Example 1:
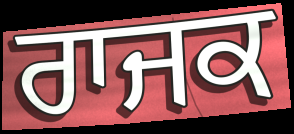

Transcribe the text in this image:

ਰਾਜਕ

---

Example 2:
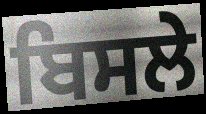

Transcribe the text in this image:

ਬਿਸਲੇ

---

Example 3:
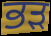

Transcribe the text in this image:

ਭੜ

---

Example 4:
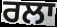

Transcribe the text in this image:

ਰਲਾ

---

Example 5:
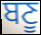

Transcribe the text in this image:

ਬਣੂ